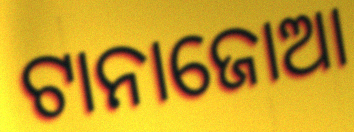
ଟାନାଜୋଆ